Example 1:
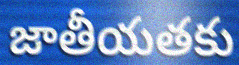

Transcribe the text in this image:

జాతీయతకు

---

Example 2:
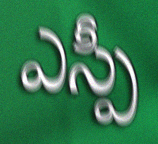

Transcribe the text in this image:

ఎస్పీ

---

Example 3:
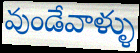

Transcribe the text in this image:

వుండేవాళ్ళు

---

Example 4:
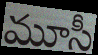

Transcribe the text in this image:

మూసీ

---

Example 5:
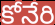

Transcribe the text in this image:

కోనేరి